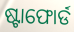
ଷ୍ଟାଫୋର୍ଡ